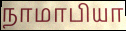
நாமாபியா